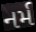
નર્મ